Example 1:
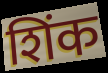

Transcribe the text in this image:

शिंक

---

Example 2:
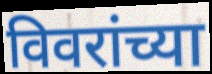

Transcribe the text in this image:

विवरांच्या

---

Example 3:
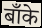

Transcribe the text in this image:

बाँके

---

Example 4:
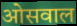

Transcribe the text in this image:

ओसवाल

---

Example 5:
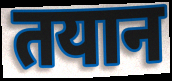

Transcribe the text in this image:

तयान